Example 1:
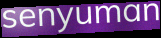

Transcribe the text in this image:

senyuman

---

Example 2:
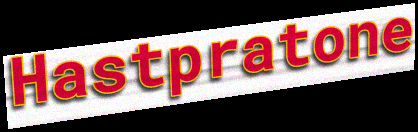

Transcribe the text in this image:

Hastpratone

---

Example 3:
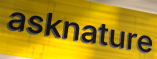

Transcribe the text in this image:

asknature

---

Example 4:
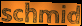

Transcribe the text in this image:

schmid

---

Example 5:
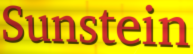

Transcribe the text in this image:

Sunstein